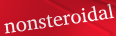
nonsteroidal